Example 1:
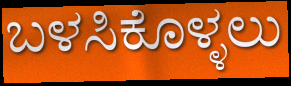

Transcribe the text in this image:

ಬಳಸಿಕೊಳ್ಳಲು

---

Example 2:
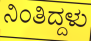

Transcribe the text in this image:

ನಿಂತಿದ್ದಳು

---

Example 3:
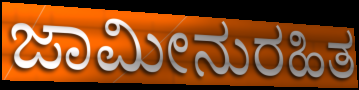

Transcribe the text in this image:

ಜಾಮೀನುರಹಿತ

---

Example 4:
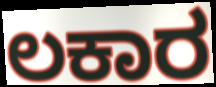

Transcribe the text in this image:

ಲಕಾರ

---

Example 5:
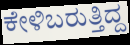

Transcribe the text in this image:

ಕೇಳಿಬರುತ್ತಿದ್ದ